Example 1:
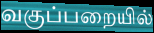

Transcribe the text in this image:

வகுப்பறையில்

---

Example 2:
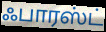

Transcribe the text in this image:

ஃபாரஸ்ட்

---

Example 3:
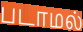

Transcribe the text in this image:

படாமல்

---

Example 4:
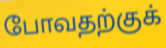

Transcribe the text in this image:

போவதற்குக்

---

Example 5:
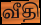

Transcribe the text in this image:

வீதி